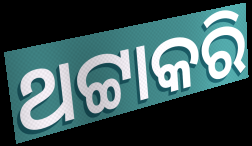
ଥଟ୍ଟାକରି